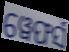
ୱେଫର୍ସ